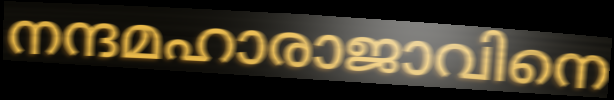
നന്ദമഹാരാജാവിനെ